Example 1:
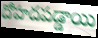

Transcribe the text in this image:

దోహదపడ్డాయి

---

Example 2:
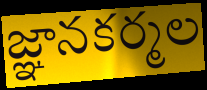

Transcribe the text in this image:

జ్ఞానకర్మల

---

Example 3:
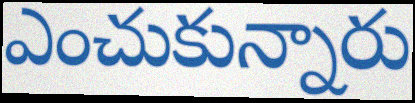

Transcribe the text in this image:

ఎంచుకున్నారు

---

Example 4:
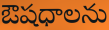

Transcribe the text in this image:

ఔషధాలను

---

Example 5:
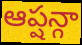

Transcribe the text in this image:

ఆప్షన్గా